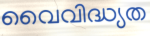
വൈവിദ്ധ്യത